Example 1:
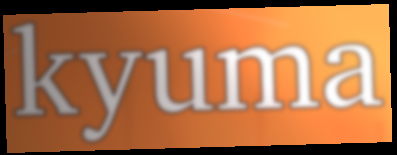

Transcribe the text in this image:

kyuma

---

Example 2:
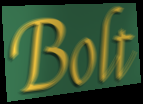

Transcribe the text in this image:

Bolt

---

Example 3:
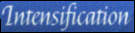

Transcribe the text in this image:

Intensification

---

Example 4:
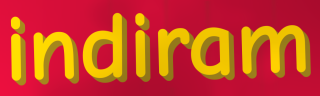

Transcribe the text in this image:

indiram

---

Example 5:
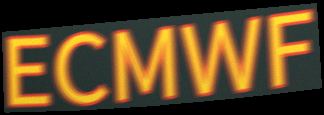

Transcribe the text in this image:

ECMWF